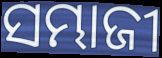
ସମ୍ଭାଜୀ